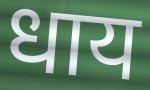
धाय